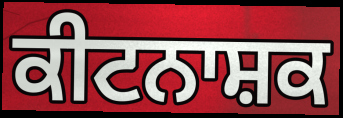
ਕੀਟਨਾਸ਼ਕ